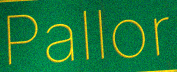
Pallor